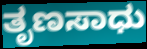
ತೃಣಸಾಧು